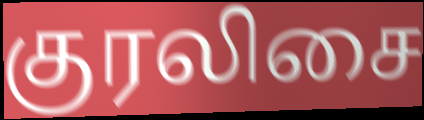
குரலிசை